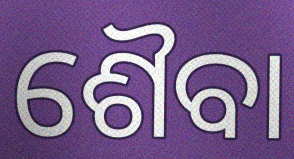
ଶୈବା